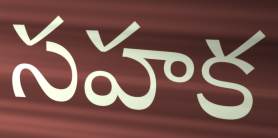
సహక